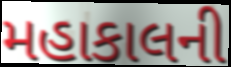
મહાકાલની